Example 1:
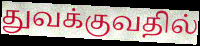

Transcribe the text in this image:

துவக்குவதில்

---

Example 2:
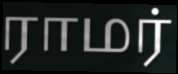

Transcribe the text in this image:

ராமர்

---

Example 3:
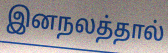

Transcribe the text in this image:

இனநலத்தால்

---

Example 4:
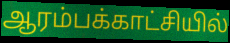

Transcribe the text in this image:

ஆரம்பக்காட்சியில்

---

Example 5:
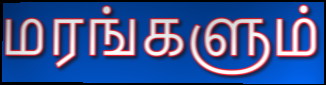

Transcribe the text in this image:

மரங்களும்